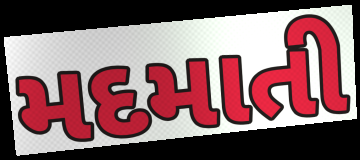
મદમાતી